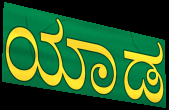
ಯಾಡ